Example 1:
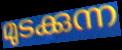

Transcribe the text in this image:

മുടക്കുന്ന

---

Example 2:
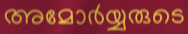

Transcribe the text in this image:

അമോർയ്യരുടെ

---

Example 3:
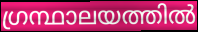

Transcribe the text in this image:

ഗ്രന്ഥാലയത്തിൽ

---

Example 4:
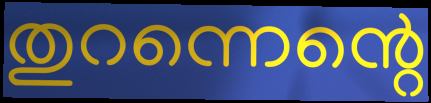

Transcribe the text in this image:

തുറന്നെന്റെ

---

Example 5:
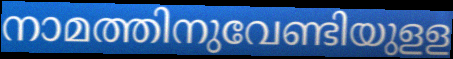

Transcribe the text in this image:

നാമത്തിനുവേണ്ടിയുളള